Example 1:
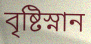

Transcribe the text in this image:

বৃষ্টিস্নান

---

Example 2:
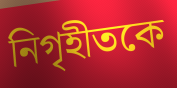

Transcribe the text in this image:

নিগৃহীতকে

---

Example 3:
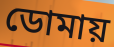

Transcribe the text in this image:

ডোমায়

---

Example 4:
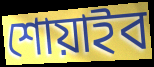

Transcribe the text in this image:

শোয়াইব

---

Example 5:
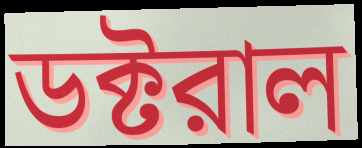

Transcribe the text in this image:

ডক্টরাল